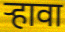
र्‍हावा